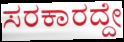
ಸರಕಾರದ್ದೇ